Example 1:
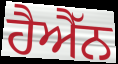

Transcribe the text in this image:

ਹੈਐੱਨ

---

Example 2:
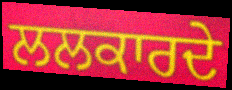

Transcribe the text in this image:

ਲਲਕਾਰਦੇ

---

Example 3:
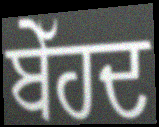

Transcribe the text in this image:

ਬੇੱਹਦ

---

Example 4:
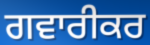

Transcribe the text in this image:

ਗਵਾਰੀਕਰ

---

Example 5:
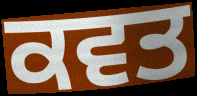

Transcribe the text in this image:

ਕਵਤ